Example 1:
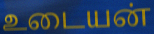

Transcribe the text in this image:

உடையன்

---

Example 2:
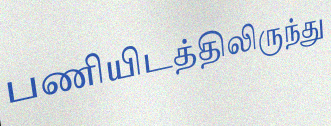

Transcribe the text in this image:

பணியிடத்திலிருந்து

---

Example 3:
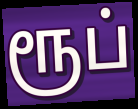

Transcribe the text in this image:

ரூப்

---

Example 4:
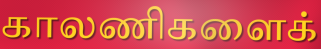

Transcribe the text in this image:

காலணிகளைக்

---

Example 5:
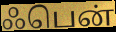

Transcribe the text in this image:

ஃபென்